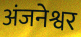
अंजनेश्वर